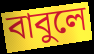
বাবুলে